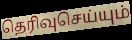
தெரிவுசெய்யும்